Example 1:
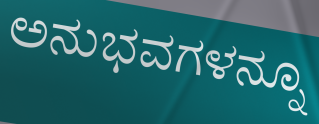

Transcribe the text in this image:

ಅನುಭವಗಳನ್ನೂ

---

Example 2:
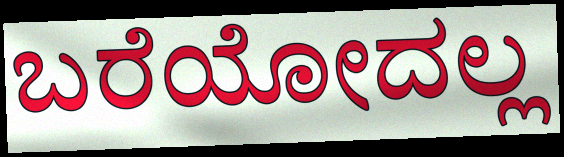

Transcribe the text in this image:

ಬರೆಯೋದಲ್ಲ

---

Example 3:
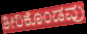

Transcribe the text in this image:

ತೀರಿಕೊಂಡವು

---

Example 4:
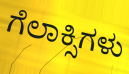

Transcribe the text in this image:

ಗೆಲಾಕ್ಸಿಗಳು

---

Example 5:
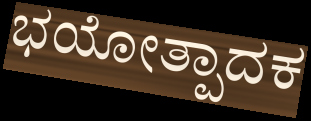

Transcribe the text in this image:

ಭಯೋತ್ಪಾದಕ